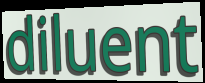
diluent